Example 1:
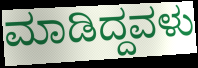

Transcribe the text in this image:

ಮಾಡಿದ್ದವಳು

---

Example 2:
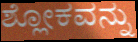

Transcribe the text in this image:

ಶ್ಲೋಕವನ್ನು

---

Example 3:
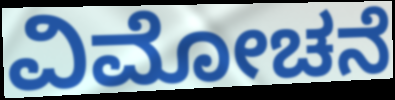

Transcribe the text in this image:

ವಿಮೋಚನೆ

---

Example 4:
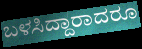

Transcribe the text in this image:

ಬಳಸಿದ್ದಾರಾದರೂ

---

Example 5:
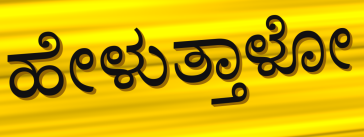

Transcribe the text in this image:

ಹೇಳುತ್ತಾಳೋ